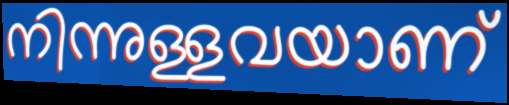
നിന്നുള്ളവയാണ്